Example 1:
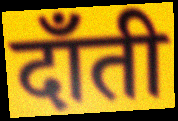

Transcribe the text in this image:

दाँती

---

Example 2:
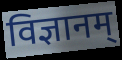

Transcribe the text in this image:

विज्ञानम्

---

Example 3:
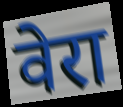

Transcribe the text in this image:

वेरा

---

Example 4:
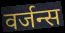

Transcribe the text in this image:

वर्जन्स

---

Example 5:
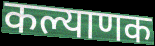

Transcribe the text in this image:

कल्याणक